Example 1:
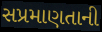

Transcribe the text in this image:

સપ્રમાણતાની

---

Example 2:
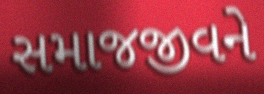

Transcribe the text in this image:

સમાજજીવને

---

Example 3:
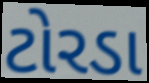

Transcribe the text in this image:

ટોરડા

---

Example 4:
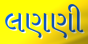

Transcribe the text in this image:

લણણી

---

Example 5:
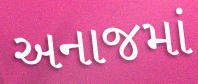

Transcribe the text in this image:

અનાજમાં